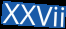
XXVii